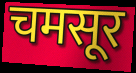
चमसूर